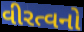
વીરત્વનો